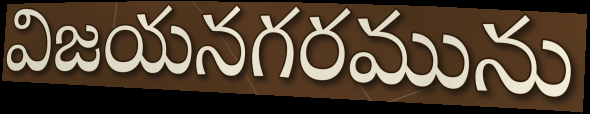
విజయనగరమును